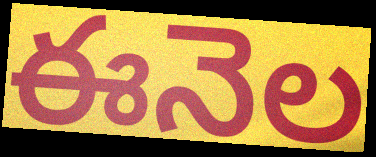
ఈనెల